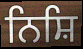
ਨਿਸ਼ਿ